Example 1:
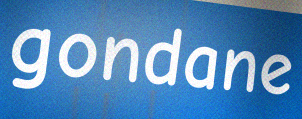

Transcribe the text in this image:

gondane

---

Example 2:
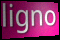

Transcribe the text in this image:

ligno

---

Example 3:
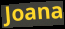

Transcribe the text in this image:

Joana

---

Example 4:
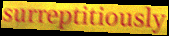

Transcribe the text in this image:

surreptitiously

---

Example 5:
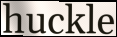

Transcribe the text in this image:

huckle